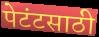
पेटंटसाठी